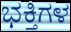
ಭಕ್ತಿಗಳ